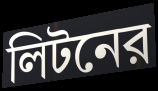
লিটনের